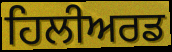
ਹਿਲੀਅਰਡ